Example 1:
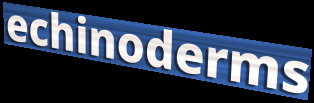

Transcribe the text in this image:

echinoderms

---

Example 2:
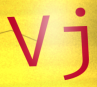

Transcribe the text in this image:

Vj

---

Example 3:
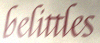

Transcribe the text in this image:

belittles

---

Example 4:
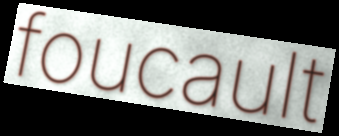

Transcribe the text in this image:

foucault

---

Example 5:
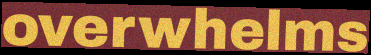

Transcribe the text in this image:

overwhelms